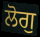
ਲੋਗੁ